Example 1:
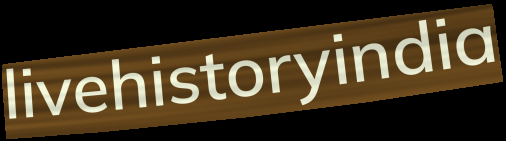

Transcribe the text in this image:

livehistoryindia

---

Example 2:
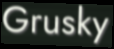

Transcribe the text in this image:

Grusky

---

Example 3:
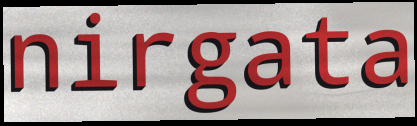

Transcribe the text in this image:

nirgata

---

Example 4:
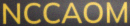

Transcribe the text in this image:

NCCAOM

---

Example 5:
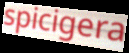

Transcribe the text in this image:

spicigera